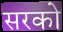
सरको